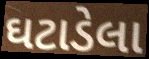
ઘટાડેલા